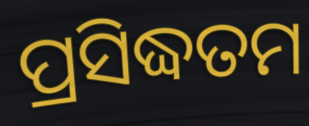
ପ୍ରସିଦ୍ଧତମ